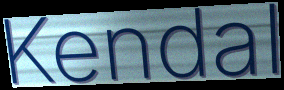
Kendal